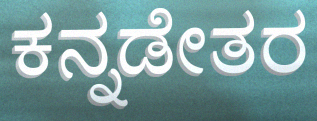
ಕನ್ನಡೇತರ